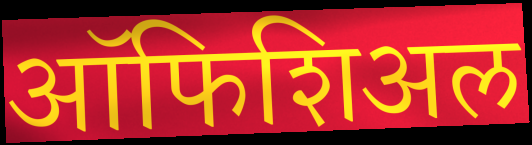
ऑफिशिअल